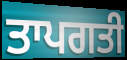
ਤਾਪਗਤੀ